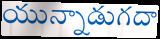
యున్నాడుగదా